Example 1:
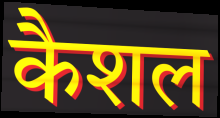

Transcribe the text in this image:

कैशल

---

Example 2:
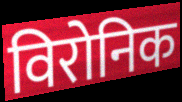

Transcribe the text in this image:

विरोनिक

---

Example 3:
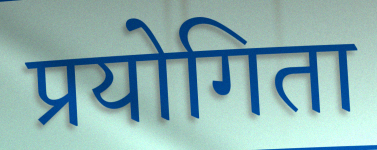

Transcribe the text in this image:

प्रयोगिता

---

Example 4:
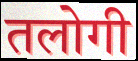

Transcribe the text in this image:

तलोगी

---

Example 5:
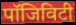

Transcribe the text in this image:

पॉजिविटी